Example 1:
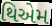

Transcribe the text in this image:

થિએમ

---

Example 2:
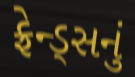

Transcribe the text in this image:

ફ્રેન્ડ્સનું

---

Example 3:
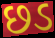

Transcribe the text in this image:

છડ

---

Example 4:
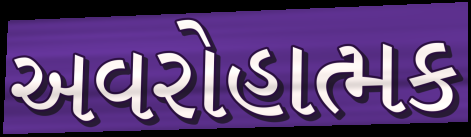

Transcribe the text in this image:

અવરોહાત્મક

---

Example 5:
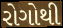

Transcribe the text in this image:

રોગોથી